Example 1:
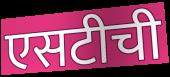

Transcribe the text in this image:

एसटीची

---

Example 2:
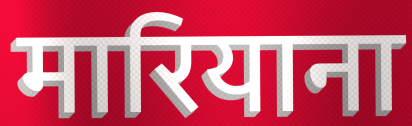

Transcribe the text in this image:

मारियाना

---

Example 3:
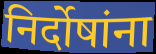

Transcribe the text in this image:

निर्दोषांना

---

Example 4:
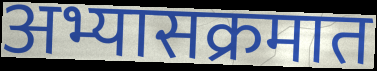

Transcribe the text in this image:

अभ्यासक्रमात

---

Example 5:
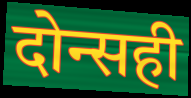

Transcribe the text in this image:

दोन्सही